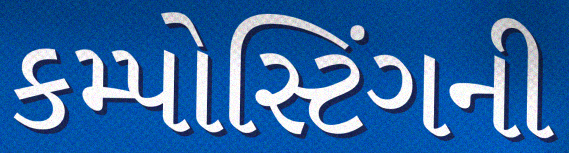
કમ્પોસ્ટિંગની